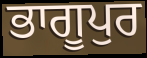
ਭਾਗੂਪੁਰ